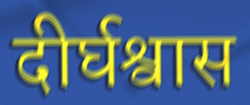
दीर्घश्वास